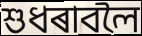
শুধৰাবলৈ